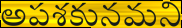
అపశకునమని